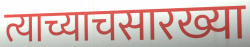
त्याच्याचसारख्या